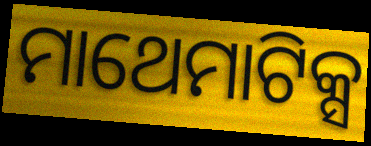
ମାଥେମାଟିକ୍ସ